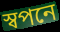
স্বপনে